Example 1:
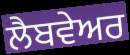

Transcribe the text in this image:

ਲੈਬਵੇਅਰ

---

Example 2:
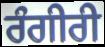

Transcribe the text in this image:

ਰੰਗੀਰੀ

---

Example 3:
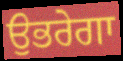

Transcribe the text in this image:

ਉਭਰੇਗਾ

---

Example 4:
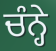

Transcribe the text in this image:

ਚੰਨ੍ਹੇ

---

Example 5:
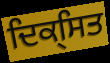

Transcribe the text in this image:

ਦਿਕ੍ਸਿਤ